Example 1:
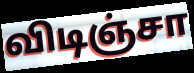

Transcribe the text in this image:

விடிஞ்சா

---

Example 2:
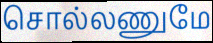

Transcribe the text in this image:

சொல்லணுமே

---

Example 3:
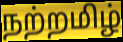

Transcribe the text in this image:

நற்றமிழ்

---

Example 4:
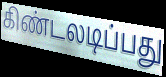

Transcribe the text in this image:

கிண்டலடிப்பது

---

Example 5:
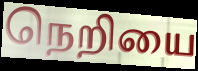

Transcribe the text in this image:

நெறியை